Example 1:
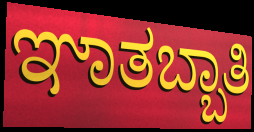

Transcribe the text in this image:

ಞಾತಬ್ಬಾತಿ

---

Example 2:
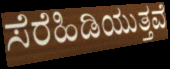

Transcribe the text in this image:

ಸೆರೆಹಿಡಿಯುತ್ತವೆ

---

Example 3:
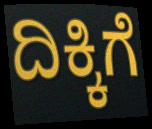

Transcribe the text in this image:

ದಿಕ್ಕಿಗೆ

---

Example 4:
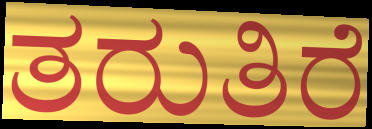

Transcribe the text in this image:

ತರುತಿರೆ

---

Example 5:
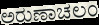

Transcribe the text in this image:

ಅರುಣಾಚಲಂ